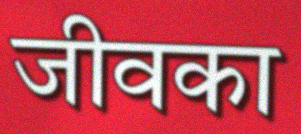
जीवका